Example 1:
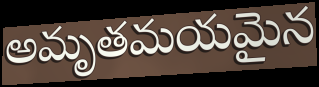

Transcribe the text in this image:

అమృతమయమైన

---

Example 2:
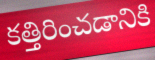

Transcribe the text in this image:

కత్తిరించడానికి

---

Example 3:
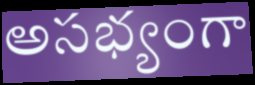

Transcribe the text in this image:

అసభ్యంగా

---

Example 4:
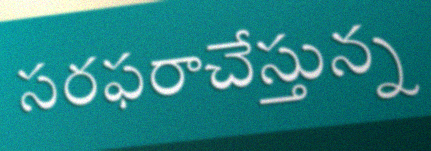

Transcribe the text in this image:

సరఫరాచేస్తున్న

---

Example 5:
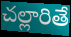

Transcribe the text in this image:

చల్లారితే